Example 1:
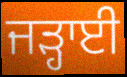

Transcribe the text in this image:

ਜੜ੍ਹਾਈ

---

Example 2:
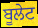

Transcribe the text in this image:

ਬੂਲੇਟ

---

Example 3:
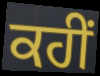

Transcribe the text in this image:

ਕਹੀਂ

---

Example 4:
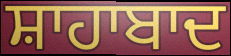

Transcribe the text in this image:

ਸ਼ਾਹਾਬਾਦ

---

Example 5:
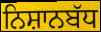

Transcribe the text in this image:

ਨਿਸ਼ਾਨਬੱਧ